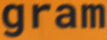
gram